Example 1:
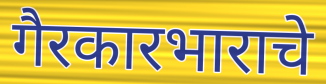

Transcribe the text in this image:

गैरकारभाराचे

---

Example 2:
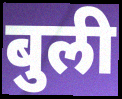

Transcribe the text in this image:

बुली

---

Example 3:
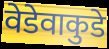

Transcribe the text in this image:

वेडेवाकुडे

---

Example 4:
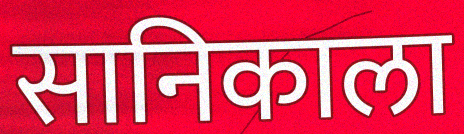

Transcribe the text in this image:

सानिकाला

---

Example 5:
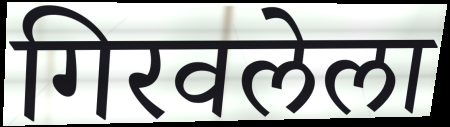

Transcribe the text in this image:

गिरवलेला